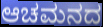
ಆಚಮನದ